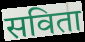
सविता